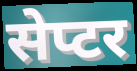
सेप्टर